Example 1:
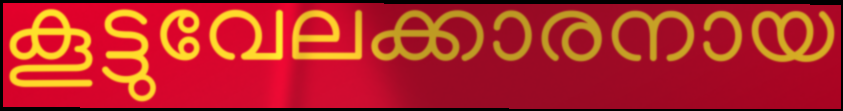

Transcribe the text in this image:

കൂട്ടുവേലക്കാരനായ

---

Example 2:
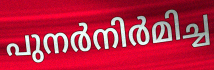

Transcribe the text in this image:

പുനർനിർമിച്ച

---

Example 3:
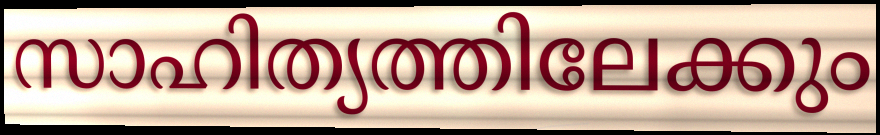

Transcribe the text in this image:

സാഹിത്യത്തിലേക്കും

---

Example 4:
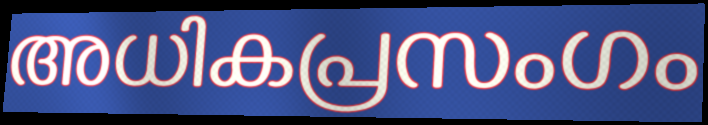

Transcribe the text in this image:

അധികപ്രസംഗം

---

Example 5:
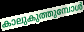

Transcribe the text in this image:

കാലുകുത്തുമ്പോൾ